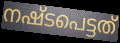
നഷ്ടപെട്ടത്